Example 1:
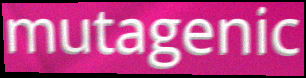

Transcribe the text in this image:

mutagenic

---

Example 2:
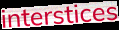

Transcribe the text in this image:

interstices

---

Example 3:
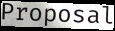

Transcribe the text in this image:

Proposal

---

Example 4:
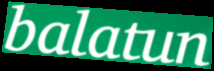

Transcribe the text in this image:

balatun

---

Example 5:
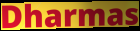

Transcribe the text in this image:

Dharmas